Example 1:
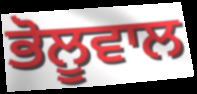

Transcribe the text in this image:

ਭੋਲੂਵਾਲ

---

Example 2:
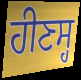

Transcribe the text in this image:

ਹੀਣਸ੍ਹ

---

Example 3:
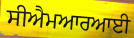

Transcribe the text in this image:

ਸੀਐਮਆਰਆਈ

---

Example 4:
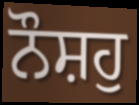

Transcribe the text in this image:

ਨੌਸ਼ਹੁ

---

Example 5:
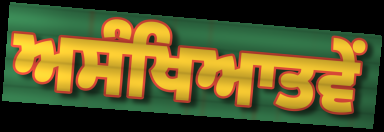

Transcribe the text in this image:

ਅਸੰਖਿਆਤਵੇਂ